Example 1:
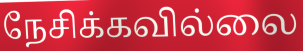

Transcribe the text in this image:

நேசிக்கவில்லை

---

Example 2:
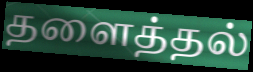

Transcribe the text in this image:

தளைத்தல்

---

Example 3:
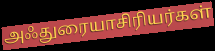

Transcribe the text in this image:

அஃதுரையாசிரியர்கள்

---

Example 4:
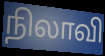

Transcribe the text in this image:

நிலாவி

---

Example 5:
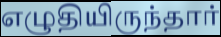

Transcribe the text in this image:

எழுதியிருந்தார்